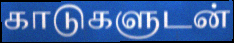
காடுகளுடன்